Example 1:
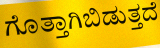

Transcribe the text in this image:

ಗೊತ್ತಾಗಿಬಿಡುತ್ತದೆ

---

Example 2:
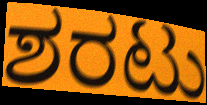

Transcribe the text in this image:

ಶರಟು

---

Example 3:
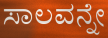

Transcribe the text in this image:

ಸಾಲವನ್ನೇ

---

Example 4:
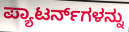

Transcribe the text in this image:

ಪ್ಯಾಟರ್ನ್‌ಗಳನ್ನು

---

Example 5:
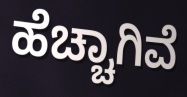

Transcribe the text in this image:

ಹೆಚ್ಚಾಗಿವೆ